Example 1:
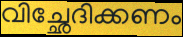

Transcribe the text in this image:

വിച്ഛേദിക്കണം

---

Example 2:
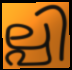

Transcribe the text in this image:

ല്പി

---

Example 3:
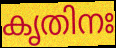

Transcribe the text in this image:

കൃതിനഃ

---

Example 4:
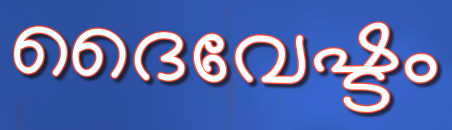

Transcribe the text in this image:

ദൈവേഷ്ടം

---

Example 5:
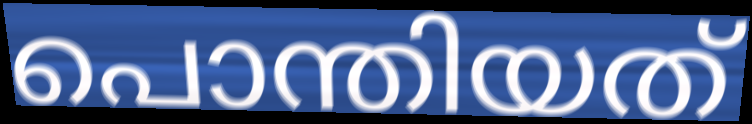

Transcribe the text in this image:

പൊന്തിയത്